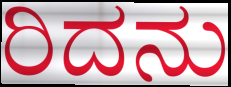
ರಿದನು